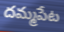
దమ్మపేట